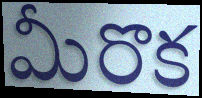
మీరొక